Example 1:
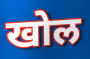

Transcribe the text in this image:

खोल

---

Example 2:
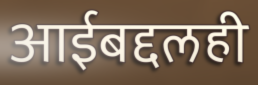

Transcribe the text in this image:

आईबद्दलही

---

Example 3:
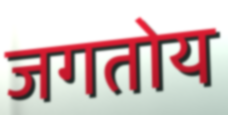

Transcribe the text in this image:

जगतोय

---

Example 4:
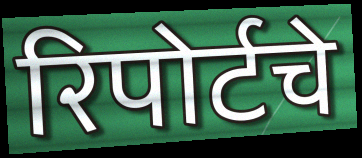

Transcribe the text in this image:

रिपोर्टचे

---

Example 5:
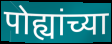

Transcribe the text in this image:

पोह्यांच्या